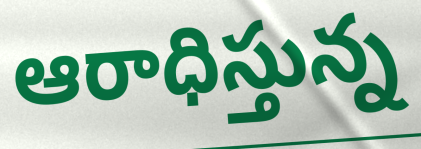
ఆరాధిస్తున్న